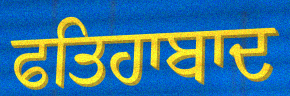
ਫਤਿਹਾਬਾਦ